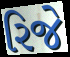
રિજે